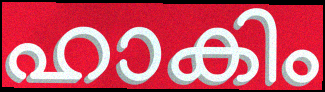
ഹാകിം